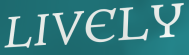
LIVELY